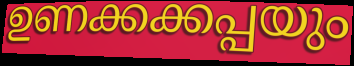
ഉണക്കക്കപ്പയും